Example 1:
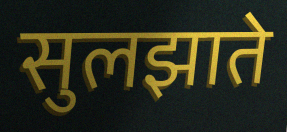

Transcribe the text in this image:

सुलझाते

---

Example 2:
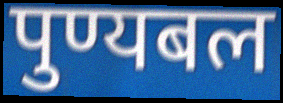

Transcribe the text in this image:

पुण्यबल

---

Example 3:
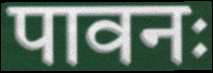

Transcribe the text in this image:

पावनः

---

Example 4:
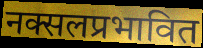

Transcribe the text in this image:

नक्सलप्रभावित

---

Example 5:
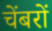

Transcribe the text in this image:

चेंबरों